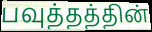
பவுத்தத்தின்